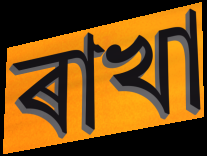
ৰাখা